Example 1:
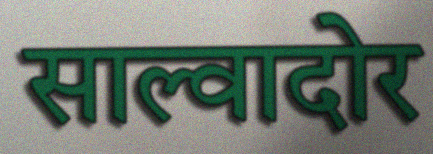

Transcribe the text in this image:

साल्वादोर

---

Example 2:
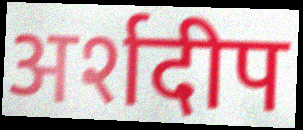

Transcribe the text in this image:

अर्शदीप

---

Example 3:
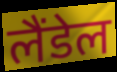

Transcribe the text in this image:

लैंडेल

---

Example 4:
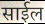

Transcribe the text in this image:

साईल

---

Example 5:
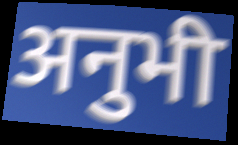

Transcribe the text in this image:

अनुभी